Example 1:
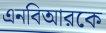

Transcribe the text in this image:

এনবিআরকে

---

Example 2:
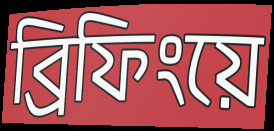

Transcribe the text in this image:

ব্রিফিংয়ে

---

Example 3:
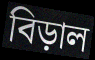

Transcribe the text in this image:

বিড়াল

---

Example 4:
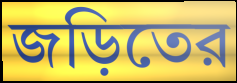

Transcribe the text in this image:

জড়িতের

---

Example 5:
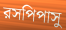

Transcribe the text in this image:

রসপিপাসু